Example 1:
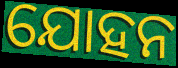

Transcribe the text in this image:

ଯୋହନ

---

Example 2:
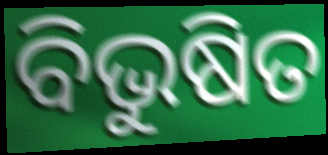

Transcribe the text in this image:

ବିଭୁଷିତ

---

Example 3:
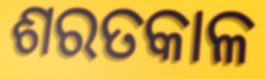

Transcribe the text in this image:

ଶରତକାଳ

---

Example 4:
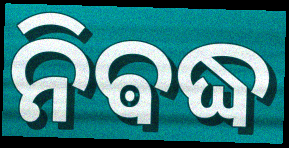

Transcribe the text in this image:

ନିଵଦ୍ଧ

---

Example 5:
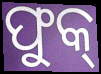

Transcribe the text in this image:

ଫୁକ୍